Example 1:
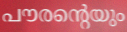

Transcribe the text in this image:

പൗരന്റെയും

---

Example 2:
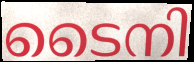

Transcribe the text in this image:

ടൈനി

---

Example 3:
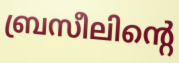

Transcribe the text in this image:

ബ്രസീലിന്റെ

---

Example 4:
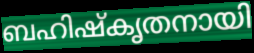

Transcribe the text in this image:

ബഹിഷ്കൃതനായി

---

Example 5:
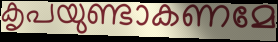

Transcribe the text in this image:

കൃപയുണ്ടാകണമേ